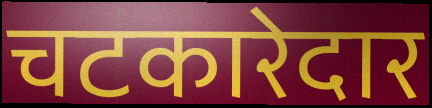
चटकारेदार